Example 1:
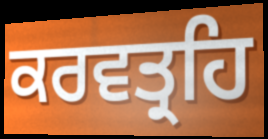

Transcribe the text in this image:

ਕਰਵਤ੍ਰਹਿ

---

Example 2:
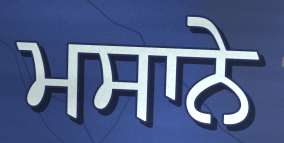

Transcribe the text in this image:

ਮਸਾਨੇ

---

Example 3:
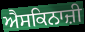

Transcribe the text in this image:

ਐਸਕਿਨਾਜ਼ੀ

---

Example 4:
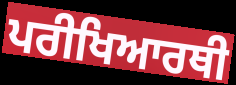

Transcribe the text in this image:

ਪਰੀਖਿਆਰਥੀ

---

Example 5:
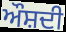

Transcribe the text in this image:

ਔਸ਼ਦੀ